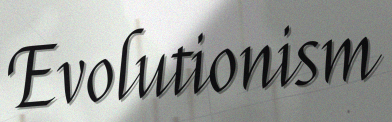
Evolutionism